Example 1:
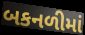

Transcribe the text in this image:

બકનળીમાં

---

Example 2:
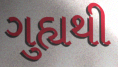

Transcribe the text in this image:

ગુહ્યથી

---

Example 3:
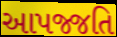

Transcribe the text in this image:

આપજ્જતિ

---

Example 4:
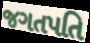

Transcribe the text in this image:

જગતપતિ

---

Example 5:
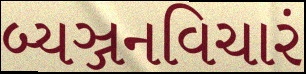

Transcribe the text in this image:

બ્યઞ્જનવિચારં